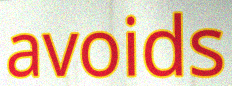
avoids